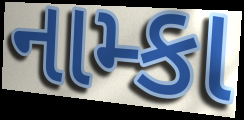
નામ્કા